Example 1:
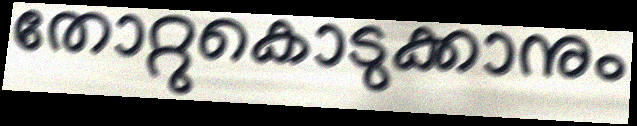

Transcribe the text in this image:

തോറ്റുകൊടുക്കാനും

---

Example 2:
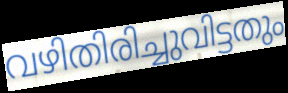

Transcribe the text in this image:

വഴിതിരിച്ചുവിട്ടതും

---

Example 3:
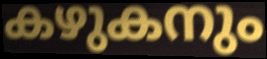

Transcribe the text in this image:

കഴുകനും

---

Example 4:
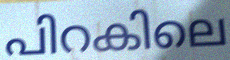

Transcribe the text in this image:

പിറകിലെ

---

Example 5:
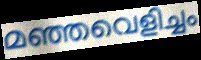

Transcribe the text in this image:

മഞ്ഞവെളിച്ചം